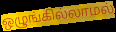
ஒழுங்கில்லாமல்